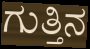
ಗುತ್ತಿನ